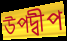
উপদ্বীপ